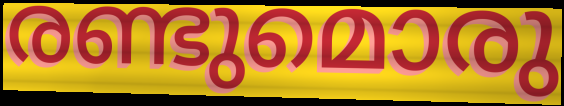
രണ്ടുമൊരു